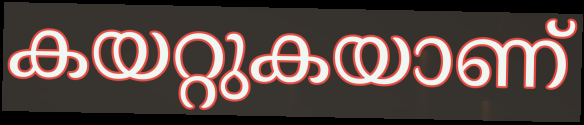
കയറ്റുകയാണ്